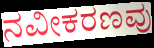
ನವೀಕರಣವು